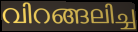
വിറങ്ങലിച്ച